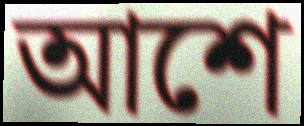
আশে